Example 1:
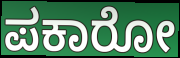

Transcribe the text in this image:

ಪಕಾರೋ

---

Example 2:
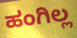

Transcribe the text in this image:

ಹಂಗಿಲ್ಲ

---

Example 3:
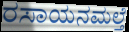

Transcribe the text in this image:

ರಸಾಯನಮಲ್ತೆ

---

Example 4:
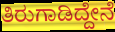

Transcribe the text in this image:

ತಿರುಗಾಡಿದ್ದೇನೆ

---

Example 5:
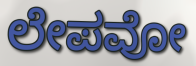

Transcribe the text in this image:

ಲೇಪವೋ